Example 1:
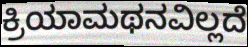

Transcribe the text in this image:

ಕ್ರಿಯಾಮಥನವಿಲ್ಲದೆ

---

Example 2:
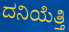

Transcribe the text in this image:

ದನಿಯೆತ್ತಿ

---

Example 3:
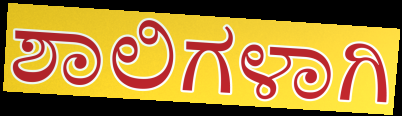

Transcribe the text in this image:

ಶಾಲಿಗಳಾಗಿ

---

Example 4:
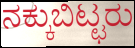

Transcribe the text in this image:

ನಕ್ಕುಬಿಟ್ಟರು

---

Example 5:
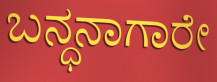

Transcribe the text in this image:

ಬನ್ಧನಾಗಾರೇ